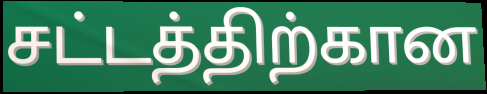
சட்டத்திற்கான